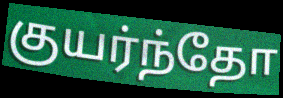
குயர்ந்தோ